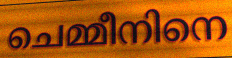
ചെമ്മീനിനെ